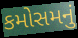
કમોસમનું